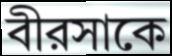
বীরসাকে